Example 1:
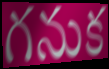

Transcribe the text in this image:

గనుక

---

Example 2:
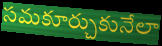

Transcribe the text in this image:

సమకూర్చుకునేలా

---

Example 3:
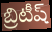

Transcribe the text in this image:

బ్రిటీష్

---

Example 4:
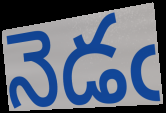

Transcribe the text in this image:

నెడఁ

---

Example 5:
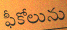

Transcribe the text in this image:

ఫీకోలును